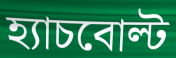
হ্যাচবোল্ট